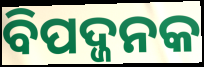
ବିପଦ୍ଜନକ